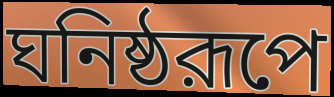
ঘনিষ্ঠরূপে